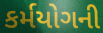
કર્મયોગની